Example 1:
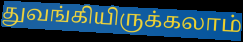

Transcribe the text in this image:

துவங்கியிருக்கலாம்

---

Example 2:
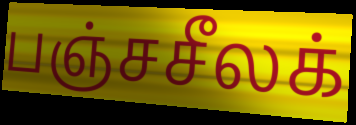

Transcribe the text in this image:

பஞ்சசீலக்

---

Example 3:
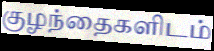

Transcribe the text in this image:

குழந்தைகளிடம்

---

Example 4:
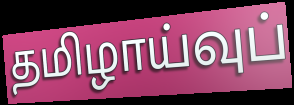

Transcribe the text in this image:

தமிழாய்வுப்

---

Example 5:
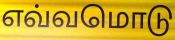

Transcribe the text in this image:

எவ்வமொடு